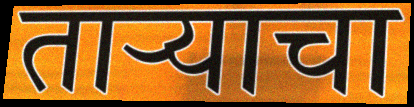
ताऱ्याचा